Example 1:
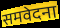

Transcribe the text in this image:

समवेदना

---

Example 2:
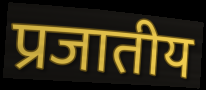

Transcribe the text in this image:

प्रजातीय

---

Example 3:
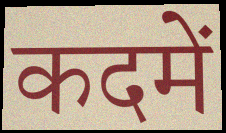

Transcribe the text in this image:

कदमें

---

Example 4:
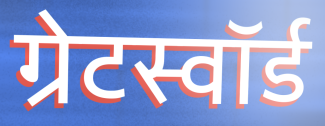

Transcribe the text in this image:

ग्रेटस्वॉर्ड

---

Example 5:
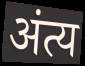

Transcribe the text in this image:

अंत्य